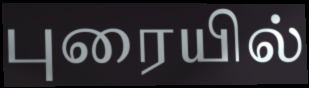
புரையில்